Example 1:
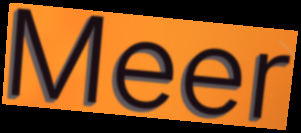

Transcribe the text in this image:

Meer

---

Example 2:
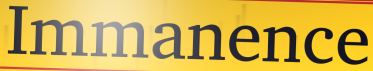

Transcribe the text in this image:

Immanence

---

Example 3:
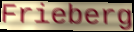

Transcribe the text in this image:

Frieberg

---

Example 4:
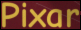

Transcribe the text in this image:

Pixar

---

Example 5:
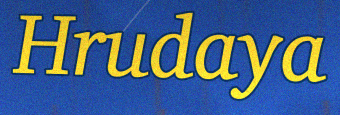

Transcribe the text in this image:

Hrudaya